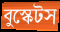
বুস্কেটস